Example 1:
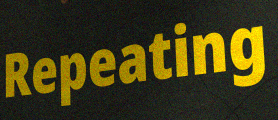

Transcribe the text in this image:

Repeating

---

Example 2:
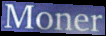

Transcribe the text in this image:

Moner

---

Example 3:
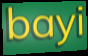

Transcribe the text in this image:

bayi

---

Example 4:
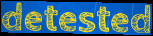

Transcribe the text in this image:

detested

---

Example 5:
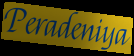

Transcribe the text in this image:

Peradeniya